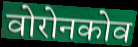
वोरोनकोव